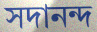
সদানন্দ